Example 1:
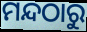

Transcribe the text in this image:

ମନ୍ଦଠାରୁ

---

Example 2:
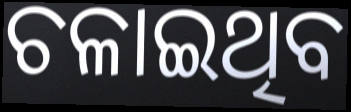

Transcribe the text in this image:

ଚଳାଇଥିବ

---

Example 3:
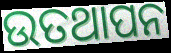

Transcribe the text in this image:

ଉତଥାପନ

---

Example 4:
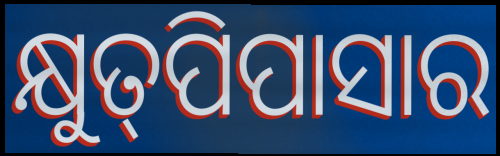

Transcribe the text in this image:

କ୍ଷୁତ୍‍ପିପାସାର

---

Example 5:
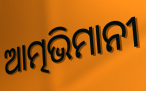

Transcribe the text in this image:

ଆତ୍ମଭିମାନୀ